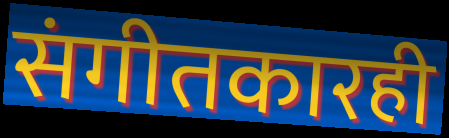
संगीतकारही